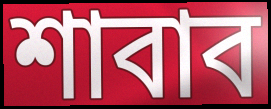
শাবাব